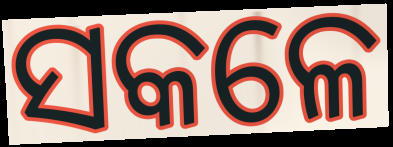
ସକଳେ